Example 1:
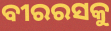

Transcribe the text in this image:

ବୀରରସକୁ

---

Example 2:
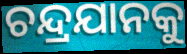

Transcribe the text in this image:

ଚନ୍ଦ୍ରଯାନକୁ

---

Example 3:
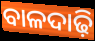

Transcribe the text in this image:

ବାଳଦାଢ଼ି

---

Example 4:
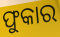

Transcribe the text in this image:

ଫୁକାର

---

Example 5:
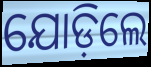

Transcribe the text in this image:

ଯୋଡ଼ିଲେ